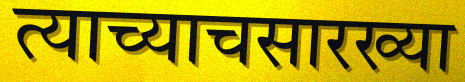
त्याच्याचसारख्या